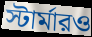
স্টার্মারও